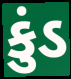
કુંડ